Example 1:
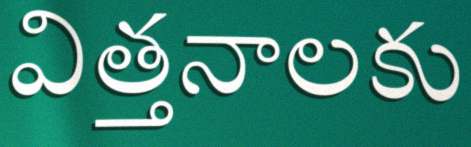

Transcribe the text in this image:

విత్తనాలకు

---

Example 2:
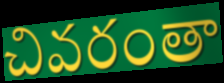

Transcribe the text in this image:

చివరంతా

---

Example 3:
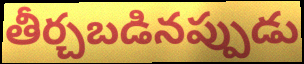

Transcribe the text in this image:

తీర్చబడినప్పుడు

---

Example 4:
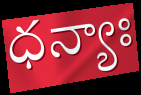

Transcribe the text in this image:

ధన్యాః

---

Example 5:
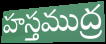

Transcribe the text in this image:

హస్తముద్ర